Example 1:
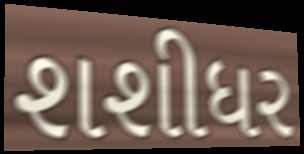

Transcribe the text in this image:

શશીધર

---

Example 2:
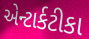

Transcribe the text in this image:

એન્ટાર્કટીકા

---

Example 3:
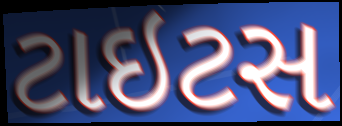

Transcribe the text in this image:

ટાઇટસ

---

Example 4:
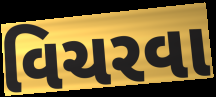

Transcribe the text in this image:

વિચરવા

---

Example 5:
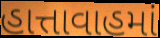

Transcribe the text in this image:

હાત્તાવાહમાં